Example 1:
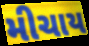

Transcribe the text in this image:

મીચાય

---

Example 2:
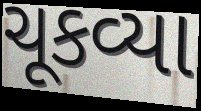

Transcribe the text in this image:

ચૂકવ્યા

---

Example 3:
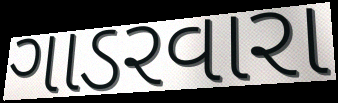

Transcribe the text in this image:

ગાડરવારા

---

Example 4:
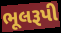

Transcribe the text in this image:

ભૂલરૂપી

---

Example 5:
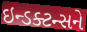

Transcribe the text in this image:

ઇન્ડક્ટન્સને